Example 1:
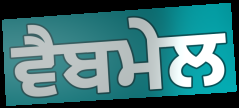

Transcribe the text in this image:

ਵੈਬਮੇਲ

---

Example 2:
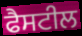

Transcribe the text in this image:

ਫੈਸਟੀਲ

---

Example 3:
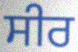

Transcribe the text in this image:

ਸੀਰ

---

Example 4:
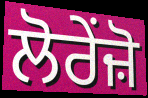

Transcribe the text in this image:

ਲੋਰੇਂਜ਼ੋ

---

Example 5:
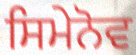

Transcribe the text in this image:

ਸਿਮੇਨੋਵ